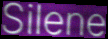
Silene